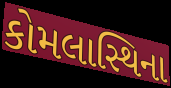
કોમલાસ્થિના